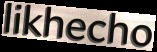
likhecho